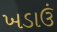
ખડાઉં